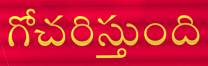
గోచరిస్తుంది